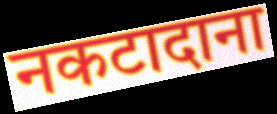
नकटादाना